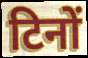
टिनों